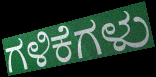
ಗಳಿಕೆಗಳು